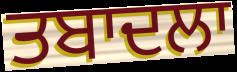
ਤਬਾਦਲਾ